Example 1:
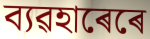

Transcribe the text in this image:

ব্যৱহাৰেৰে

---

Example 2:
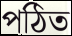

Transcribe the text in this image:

পঠিত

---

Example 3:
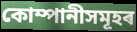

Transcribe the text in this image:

কোম্পানীসমূহৰ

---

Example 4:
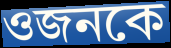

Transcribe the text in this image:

ওজনকে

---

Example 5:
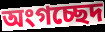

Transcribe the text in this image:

অংগচ্ছেদ